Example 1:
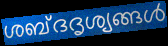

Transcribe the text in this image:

ശബ്ദദൃശ്യങ്ങൾ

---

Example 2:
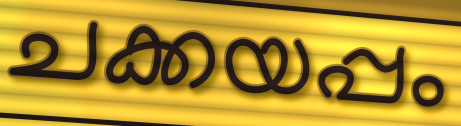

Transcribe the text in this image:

ചക്കയപ്പം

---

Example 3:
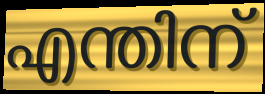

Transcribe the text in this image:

എന്തിന്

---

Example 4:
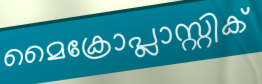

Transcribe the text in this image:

മൈക്രോപ്ലാസ്റ്റിക്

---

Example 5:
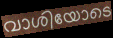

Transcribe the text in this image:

വാശിയോടെ